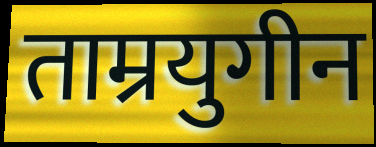
ताम्रयुगीन